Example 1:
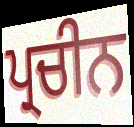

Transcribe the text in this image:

ਪ੍ਰਚੀਨ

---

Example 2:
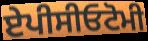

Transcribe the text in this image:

ਏਪੀਸੀਓਟੋਮੀ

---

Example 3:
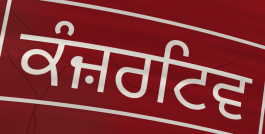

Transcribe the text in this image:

ਕੰਜ਼ਰਟਿਵ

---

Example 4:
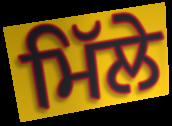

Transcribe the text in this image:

ਮਿੱਲੇ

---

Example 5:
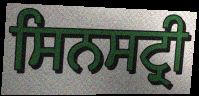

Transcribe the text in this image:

ਸਿਨਸਟ੍ਰੀ